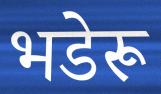
भडेरू